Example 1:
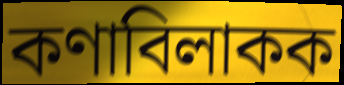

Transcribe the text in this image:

কণাবিলাকক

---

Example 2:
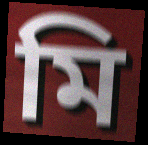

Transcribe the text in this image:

মি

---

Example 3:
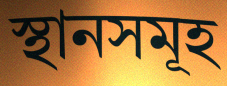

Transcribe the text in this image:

স্থানসমূহ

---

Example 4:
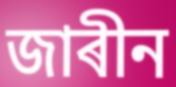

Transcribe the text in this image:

জাৰীন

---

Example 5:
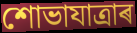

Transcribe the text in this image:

শোভাযাত্ৰাৰ